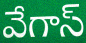
వేగాస్